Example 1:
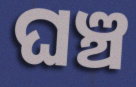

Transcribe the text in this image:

ଘଞ୍ଚ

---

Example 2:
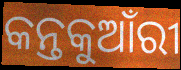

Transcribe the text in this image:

କନ୍ତକୁଆଁରୀ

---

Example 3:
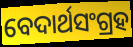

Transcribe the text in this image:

ବେଦାର୍ଥସଂଗ୍ରହ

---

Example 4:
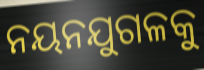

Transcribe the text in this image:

ନୟନଯୁଗଳକୁ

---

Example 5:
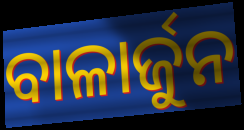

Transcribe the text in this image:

ବାଳାର୍ଜୁନ